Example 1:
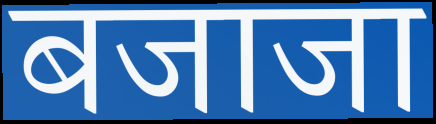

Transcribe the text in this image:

बजाजा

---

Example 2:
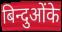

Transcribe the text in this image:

बिन्दुओंके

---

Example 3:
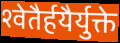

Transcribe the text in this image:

श्वेतैर्हयैर्युक्ते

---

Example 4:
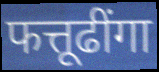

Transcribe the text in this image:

फत्तूढींगा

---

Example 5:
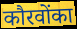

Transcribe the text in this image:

कौरवोंका